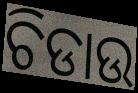
ଚିଡାଉ